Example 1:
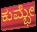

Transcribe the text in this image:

ಕುಮ್ಭೇ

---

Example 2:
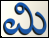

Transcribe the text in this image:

ಮಿ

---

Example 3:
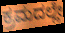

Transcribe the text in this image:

ಕ್ರಮದಲ್ಲೇ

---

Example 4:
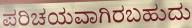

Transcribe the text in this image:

ಪರಿಚಯವಾಗಿರಬಹುದು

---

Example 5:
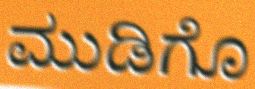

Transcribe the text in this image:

ಮುಡಿಗೊ